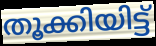
തൂക്കിയിട്ട്